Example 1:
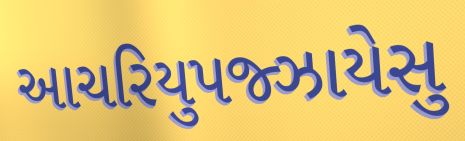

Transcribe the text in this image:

આચરિયુપજ્ઝાયેસુ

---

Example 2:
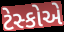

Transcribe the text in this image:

ટેસ્કોએ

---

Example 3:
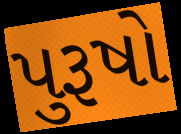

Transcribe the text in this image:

પુરૂષો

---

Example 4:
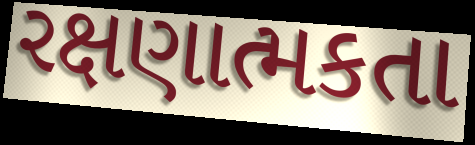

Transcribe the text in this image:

રક્ષણાત્મકતા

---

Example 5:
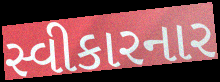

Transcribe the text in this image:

સ્વીકારનાર